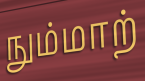
நும்மாற்